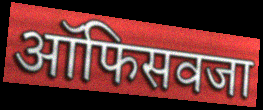
ऑफिसवजा